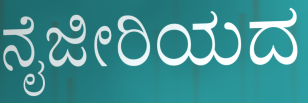
ನೈಜೀರಿಯದ